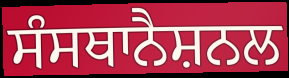
ਸੰਸਥਾਨੈਸ਼ਨਲ